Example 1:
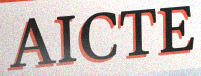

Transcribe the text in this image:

AICTE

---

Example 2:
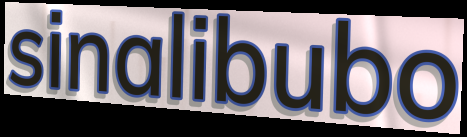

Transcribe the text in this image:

sinalibubo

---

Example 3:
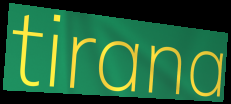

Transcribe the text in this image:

tirana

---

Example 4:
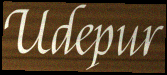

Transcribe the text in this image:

Udepur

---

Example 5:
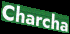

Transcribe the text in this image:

Charcha